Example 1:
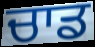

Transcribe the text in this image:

ਚਾਡ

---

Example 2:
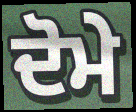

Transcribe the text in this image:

ਦੋਮੇ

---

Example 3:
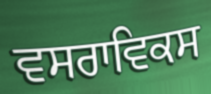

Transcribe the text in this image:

ਵਸਰਾਵਿਕਸ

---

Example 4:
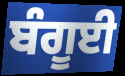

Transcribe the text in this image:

ਬੰਗੂਈ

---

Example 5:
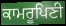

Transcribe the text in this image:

ਕਾਮਰੂਪਿਣੀ